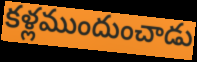
కళ్లముందుంచాడు